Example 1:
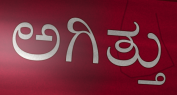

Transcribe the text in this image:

ಅಗಿತ್ತು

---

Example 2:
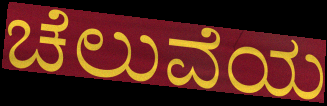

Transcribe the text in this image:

ಚೆಲುವೆಯ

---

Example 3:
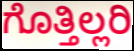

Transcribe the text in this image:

ಗೊತ್ತಿಲ್ಲರಿ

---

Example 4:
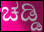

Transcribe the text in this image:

ಚಡ್ಡಿ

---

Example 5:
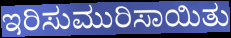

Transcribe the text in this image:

ಇರಿಸುಮುರಿಸಾಯಿತು